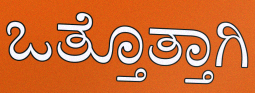
ಒತ್ತೊತ್ತಾಗಿ